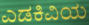
ಎಡಕಿವಿಯ